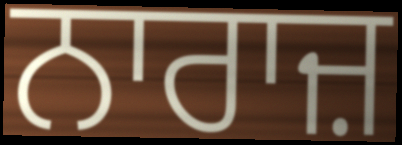
ਨਾਰਾਜ਼